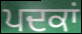
ਪਦਕਾਂ